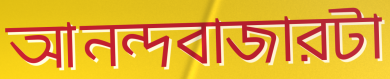
আনন্দবাজারটা